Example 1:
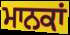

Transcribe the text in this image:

ਮਾਨਕਾਂ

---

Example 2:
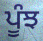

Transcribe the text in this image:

ਪੂੰਝ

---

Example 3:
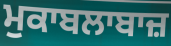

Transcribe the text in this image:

ਮੁਕਾਬਲਾਬਾਜ਼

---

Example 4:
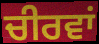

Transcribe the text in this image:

ਚੀਰਵਾਂ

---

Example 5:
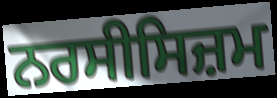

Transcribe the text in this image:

ਨਰਸੀਸਿਜ਼ਮ